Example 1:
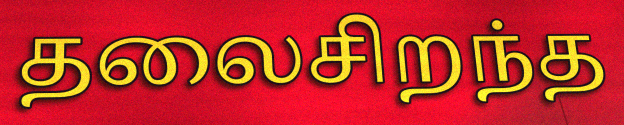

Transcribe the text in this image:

தலைசிறந்த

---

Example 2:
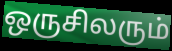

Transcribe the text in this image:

ஒருசிலரும்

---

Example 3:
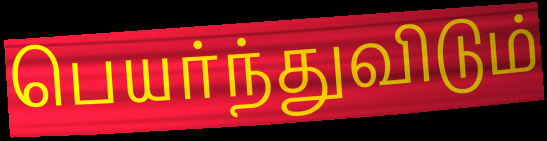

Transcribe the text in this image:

பெயர்ந்துவிடும்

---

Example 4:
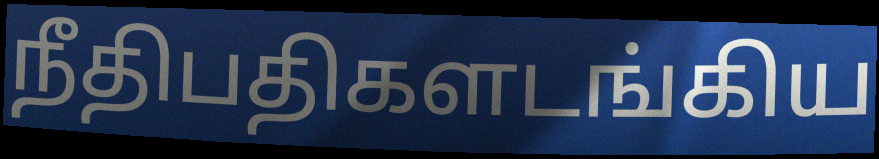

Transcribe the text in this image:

நீதிபதிகளடங்கிய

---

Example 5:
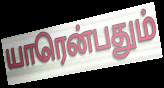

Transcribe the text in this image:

யாரென்பதும்